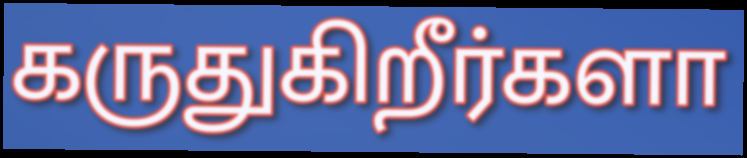
கருதுகிறீர்களா